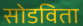
सोडविता